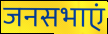
जनसभाएं